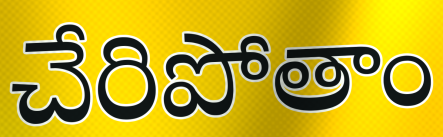
చేరిపోతాం